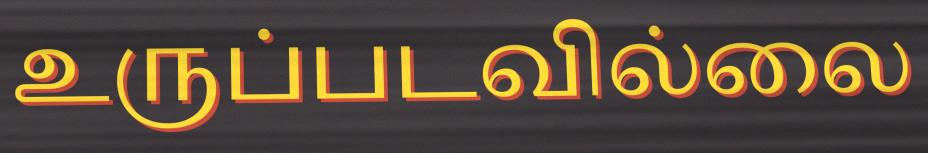
உருப்படவில்லை